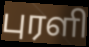
புரளி